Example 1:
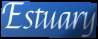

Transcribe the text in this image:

Estuary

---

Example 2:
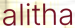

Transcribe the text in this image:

alitha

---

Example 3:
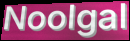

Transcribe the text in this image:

Noolgal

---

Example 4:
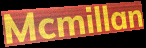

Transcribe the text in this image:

Mcmillan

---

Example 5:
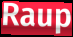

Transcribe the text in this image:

Raup